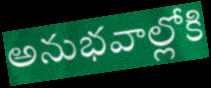
అనుభవాల్లోకి